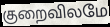
குறைவிலமே